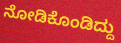
ನೋಡಿಕೊಂಡಿದ್ದು